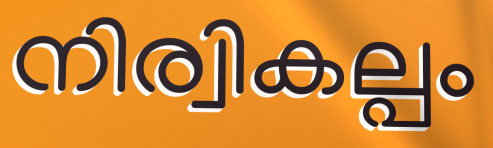
നിര്വികല്പം